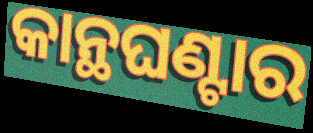
କାନ୍ଥଘଣ୍ଟାର